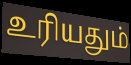
உரியதும்